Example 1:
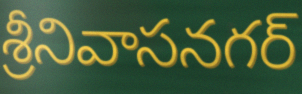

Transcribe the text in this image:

శ్రీనివాసనగర్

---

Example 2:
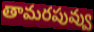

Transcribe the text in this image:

తామరపువ్వు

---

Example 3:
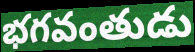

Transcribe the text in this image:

భగవంతుడు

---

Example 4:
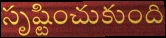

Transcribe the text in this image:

సృష్టించుకుంది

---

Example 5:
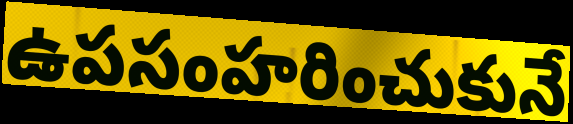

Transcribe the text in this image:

ఉపసంహరించుకునే